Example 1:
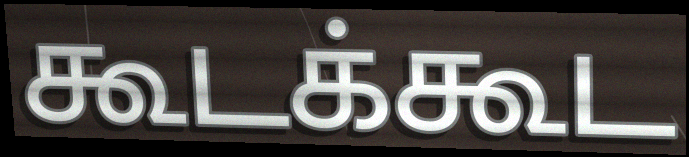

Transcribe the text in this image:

கூடக்கூட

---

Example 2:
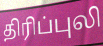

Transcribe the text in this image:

திரிப்புலி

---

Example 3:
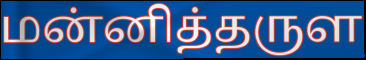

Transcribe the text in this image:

மன்னித்தருள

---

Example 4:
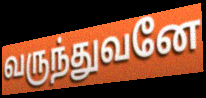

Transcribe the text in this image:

வருந்துவனே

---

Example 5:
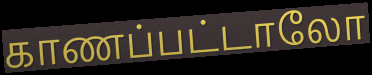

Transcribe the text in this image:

காணப்பட்டாலோ